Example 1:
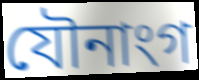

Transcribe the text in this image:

যৌনাংগ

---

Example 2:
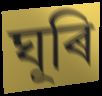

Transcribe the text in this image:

ঘূৰি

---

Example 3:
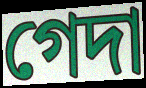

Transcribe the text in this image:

গেদা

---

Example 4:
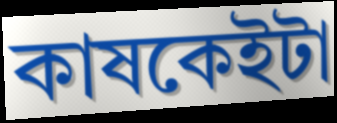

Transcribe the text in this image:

কাষকেইটা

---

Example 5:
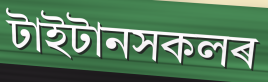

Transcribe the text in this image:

টাইটানসকলৰ